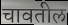
चावतील